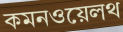
কমনওয়েলথ